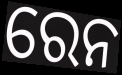
ରେନ